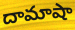
దామాషా